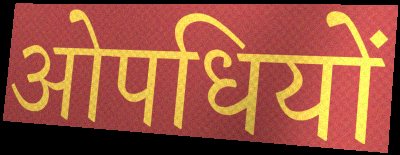
ओपधियों